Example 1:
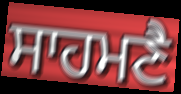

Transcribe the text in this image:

ਸਾਹਮਣੈ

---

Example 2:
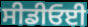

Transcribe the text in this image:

ਸੀਡੀਓਈ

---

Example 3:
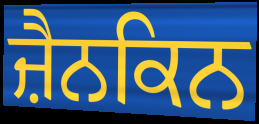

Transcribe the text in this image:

ਜ਼ੈਨਕਿਨ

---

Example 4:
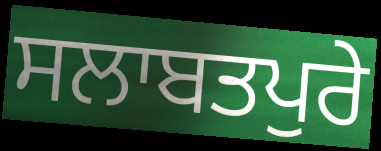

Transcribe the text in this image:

ਸਲਾਬਤਪੁਰੇ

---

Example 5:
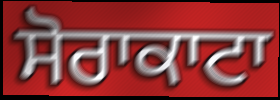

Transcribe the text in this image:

ਸੋਰਾਕਾਟਾ